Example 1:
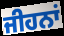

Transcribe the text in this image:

ਜੀਹਨਾਂ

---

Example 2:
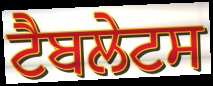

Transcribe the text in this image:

ਟੈਬਲੇਟਸ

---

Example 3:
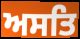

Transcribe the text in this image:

ਅਸਤਿ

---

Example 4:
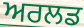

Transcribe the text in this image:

ਅਰਲਡ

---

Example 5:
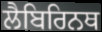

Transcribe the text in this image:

ਲੈਬਿਰਿਨਥ